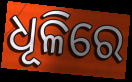
ଧୂଳିରେ